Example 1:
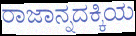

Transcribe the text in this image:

ರಾಜಾನ್ನದಕ್ಕಿಯ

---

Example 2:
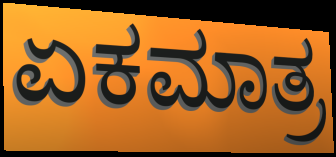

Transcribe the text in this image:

ಏಕಮಾತ್ರ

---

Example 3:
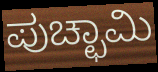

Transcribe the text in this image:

ಪುಚ್ಛಾಮಿ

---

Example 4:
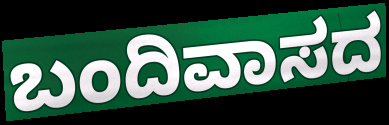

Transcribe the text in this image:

ಬಂದಿವಾಸದ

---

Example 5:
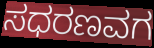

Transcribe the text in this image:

ಸಧರಣವಗ